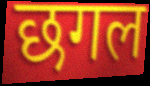
छगल